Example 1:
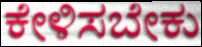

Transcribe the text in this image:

ಕೇಳಿಸಬೇಕು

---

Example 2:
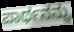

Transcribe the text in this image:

ಪಾರ್ಥನನ್ನು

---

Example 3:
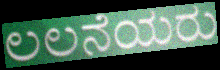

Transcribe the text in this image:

ಲಲನೆಯರು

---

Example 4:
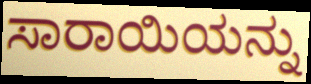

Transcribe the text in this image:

ಸಾರಾಯಿಯನ್ನು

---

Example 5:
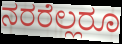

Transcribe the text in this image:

ನರರೆಲ್ಲರೂ